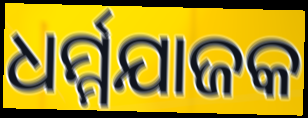
ଧର୍ମ୍ମଯାଜକ